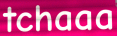
tchaaa